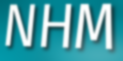
NHM